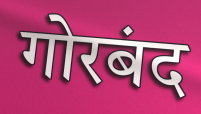
गोरबंद